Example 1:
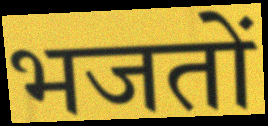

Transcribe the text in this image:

भजतों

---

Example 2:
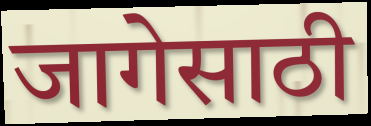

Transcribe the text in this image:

जागेसाठी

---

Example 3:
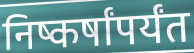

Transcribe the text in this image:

निष्कर्षांपर्यंत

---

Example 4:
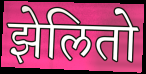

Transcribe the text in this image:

झेलितो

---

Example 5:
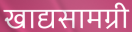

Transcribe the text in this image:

खाद्यसामग्री